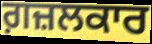
ਗ਼ਜ਼ਲਕਾਰ